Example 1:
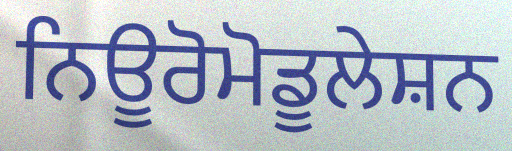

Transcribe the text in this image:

ਨਿਊਰੋਮੋਡੂਲੇਸ਼ਨ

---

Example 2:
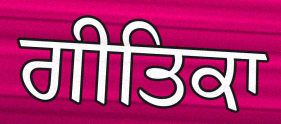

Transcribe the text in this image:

ਗੀਤਿਕਾ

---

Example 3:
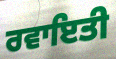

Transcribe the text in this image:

ਰਵਾਇਤੀ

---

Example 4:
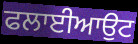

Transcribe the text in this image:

ਫਲਾਈਆਉਟ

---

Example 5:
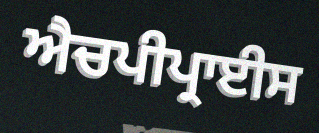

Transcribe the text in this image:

ਐਚਪੀਪ੍ਰਾਈਸ